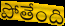
పోతేంది